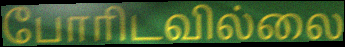
போரிடவில்லை